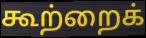
கூற்றைக்